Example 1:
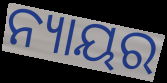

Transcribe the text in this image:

ନ୍ୟାୟର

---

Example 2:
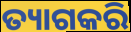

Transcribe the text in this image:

ତ୍ୟାଗକରି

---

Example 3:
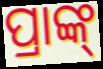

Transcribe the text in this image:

ପ୍ରାଙ୍କ୍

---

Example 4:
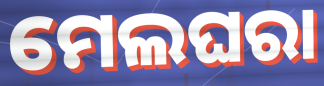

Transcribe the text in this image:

ମେଲଘରା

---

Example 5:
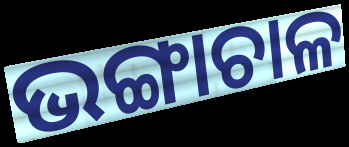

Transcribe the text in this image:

ଭଙ୍ଗାଚାଳ